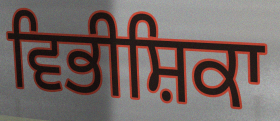
ਵਿਭੀਸ਼ਿਕਾ